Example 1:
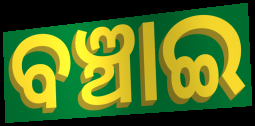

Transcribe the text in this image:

ବଞ୍ଚାଇ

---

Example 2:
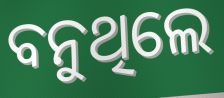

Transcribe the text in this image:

ବନୁଥିଲେ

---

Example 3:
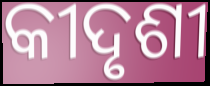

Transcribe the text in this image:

କୀଦୃଶୀ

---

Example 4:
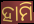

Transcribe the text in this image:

ହାମି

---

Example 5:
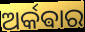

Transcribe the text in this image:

ଅର୍କଵାର